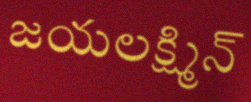
జయలక్ష్మిన్